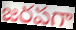
జరపగా